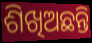
ଶିଖିଅଛନ୍ତି